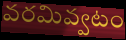
వరమివ్వటం